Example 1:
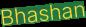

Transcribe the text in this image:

Bhashan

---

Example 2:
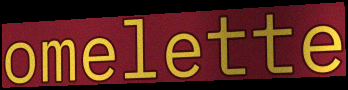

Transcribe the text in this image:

omelette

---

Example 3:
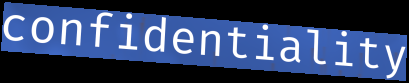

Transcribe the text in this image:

confidentiality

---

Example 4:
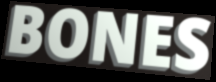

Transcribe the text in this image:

BONES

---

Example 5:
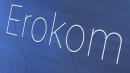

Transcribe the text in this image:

Erokom